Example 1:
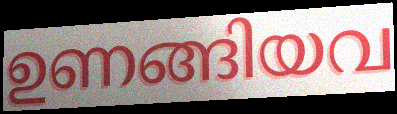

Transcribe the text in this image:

ഉണങ്ങിയവ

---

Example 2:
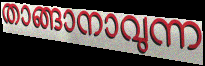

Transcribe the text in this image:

താങ്ങാനാവുന്ന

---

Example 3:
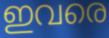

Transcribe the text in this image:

ഇവരെ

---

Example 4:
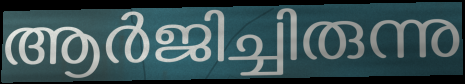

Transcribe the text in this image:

ആർജിച്ചിരുന്നു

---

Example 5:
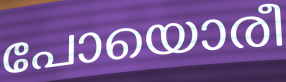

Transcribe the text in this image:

പോയൊരീ